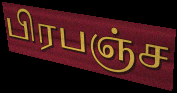
பிரபஞ்ச